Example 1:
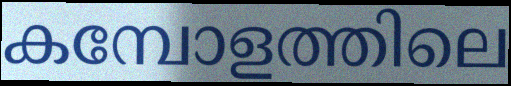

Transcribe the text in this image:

കമ്പോളത്തിലെ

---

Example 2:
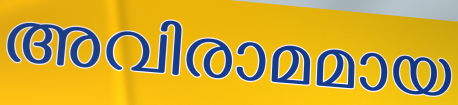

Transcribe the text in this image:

അവിരാമമായ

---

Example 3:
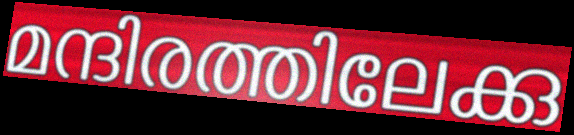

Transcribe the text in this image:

മന്ദിരത്തിലേക്കു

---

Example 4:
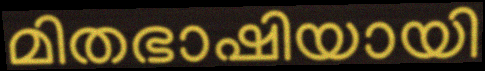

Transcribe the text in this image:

മിതഭാഷിയായി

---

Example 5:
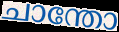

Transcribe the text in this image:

ചാന്തോ